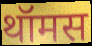
थॉमस